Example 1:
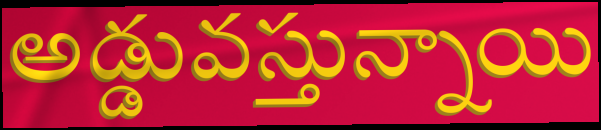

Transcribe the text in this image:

అడ్డువస్తున్నాయి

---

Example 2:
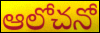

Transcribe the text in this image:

ఆలోచనో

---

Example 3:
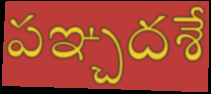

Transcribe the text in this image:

పఞ్చదశే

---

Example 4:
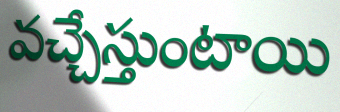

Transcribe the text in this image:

వచ్చేస్తుంటాయి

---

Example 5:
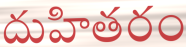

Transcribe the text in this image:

దుహితరం